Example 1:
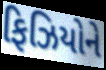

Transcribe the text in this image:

ફિઝિયોને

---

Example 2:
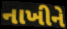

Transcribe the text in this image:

નાખીને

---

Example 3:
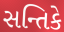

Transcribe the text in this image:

સન્તિકે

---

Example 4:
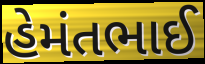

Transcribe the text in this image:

હેમંતભાઈ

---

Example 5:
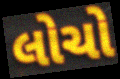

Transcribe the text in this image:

લોચો